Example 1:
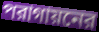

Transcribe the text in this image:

পরাগায়নের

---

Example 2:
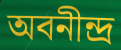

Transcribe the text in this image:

অবনীন্দ্র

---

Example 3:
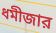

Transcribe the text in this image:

ধমীজার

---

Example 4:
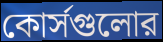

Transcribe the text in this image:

কোর্সগুলোর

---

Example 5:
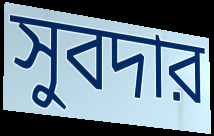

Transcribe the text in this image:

সুবদার